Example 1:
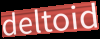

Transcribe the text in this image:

deltoid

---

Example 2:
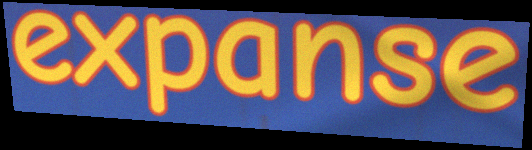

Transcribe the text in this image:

expanse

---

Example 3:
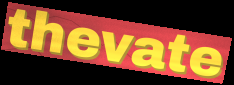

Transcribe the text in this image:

thevate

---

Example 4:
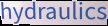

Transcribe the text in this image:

hydraulics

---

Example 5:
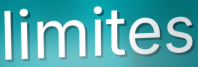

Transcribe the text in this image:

limites